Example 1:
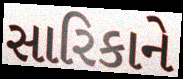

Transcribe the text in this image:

સારિકાને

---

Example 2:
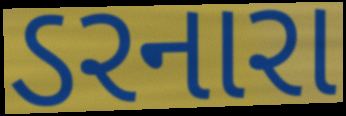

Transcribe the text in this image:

ડરનારા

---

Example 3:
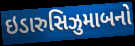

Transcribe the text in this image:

ઇડારુસિઝુમાબનો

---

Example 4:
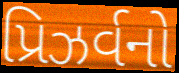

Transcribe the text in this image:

પ્રિઝર્વનો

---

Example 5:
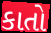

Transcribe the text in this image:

કાતો